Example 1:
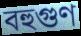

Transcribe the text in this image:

বহুগুণ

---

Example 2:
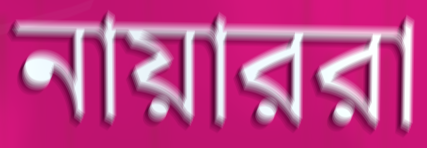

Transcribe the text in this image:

নায়াররা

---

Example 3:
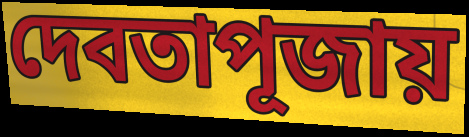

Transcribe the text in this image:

দেবতাপূজায়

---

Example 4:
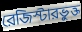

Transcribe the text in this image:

রেজিস্টারভুক্ত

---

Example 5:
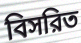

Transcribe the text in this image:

বিসরিত